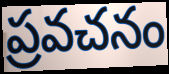
ప్రవచనం